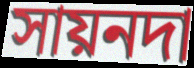
সায়নদা